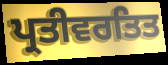
ਪ੍ਰਤੀਵਰਤਿਤ